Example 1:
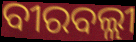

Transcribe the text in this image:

ବୀରବଲ୍ଲୀ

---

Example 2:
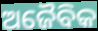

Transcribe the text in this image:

ଅଜୈବିକ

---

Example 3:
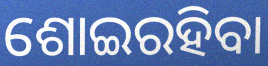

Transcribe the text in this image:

ଶୋଇରହିବା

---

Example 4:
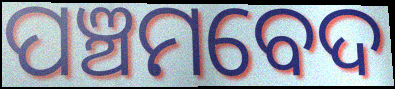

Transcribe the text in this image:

ପଞ୍ଚମବେଦ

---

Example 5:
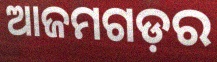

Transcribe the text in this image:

ଆଜମଗଡ଼ର